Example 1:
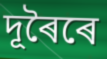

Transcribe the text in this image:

দূৰৈৰে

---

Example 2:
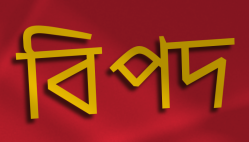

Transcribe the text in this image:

বিপদ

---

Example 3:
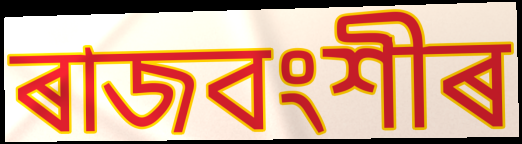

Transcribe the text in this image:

ৰাজবংশীৰ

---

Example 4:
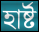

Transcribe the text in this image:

হাৰ্ষ্ট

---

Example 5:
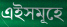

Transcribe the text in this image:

এইসমূহে